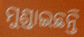
ମୁଣ୍ଡାଇଛନ୍ତି